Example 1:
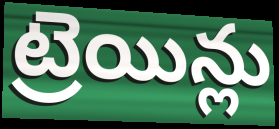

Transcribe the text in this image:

ట్రెయిన్లు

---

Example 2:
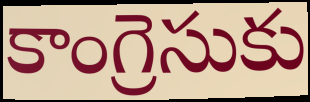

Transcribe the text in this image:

కాంగ్రెసుకు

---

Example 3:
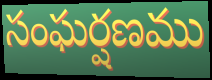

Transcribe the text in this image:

సంఘర్షణము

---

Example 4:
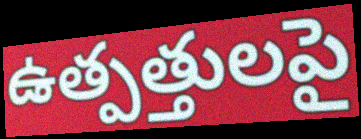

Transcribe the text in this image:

ఉత్పత్తులపై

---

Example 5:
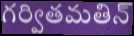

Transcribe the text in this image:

గర్వితమతిన్